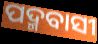
ପଦ୍ମବାସୀ